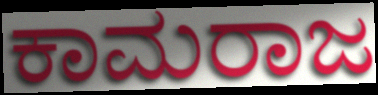
ಕಾಮರಾಜ